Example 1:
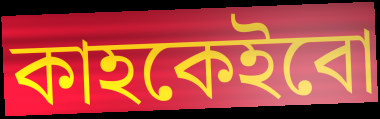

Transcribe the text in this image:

কাহকেইবো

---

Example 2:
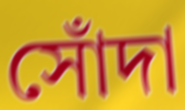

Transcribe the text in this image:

সোঁদা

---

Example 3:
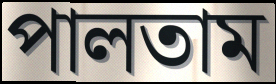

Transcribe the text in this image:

পালতাম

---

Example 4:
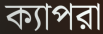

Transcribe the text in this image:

ক্যাপরা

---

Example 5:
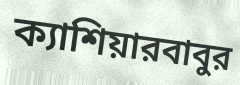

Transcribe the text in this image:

ক্যাশিয়ারবাবুর